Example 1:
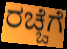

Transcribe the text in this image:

ರಚ್ಚೆಗೆ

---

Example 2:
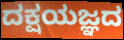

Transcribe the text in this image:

ದಕ್ಷಯಜ್ಞದ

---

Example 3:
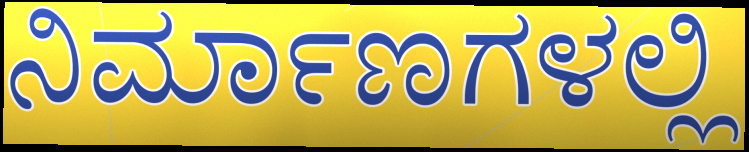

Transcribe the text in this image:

ನಿರ್ಮಾಣಗಳಲ್ಲಿ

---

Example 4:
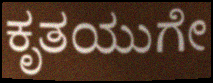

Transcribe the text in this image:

ಕೃತಯುಗೇ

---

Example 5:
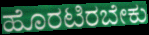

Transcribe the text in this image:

ಹೊರಟಿರಬೇಕು